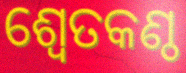
ଶ୍ୱେତକଣ୍ଠ